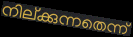
നില്ക്കുന്നതെന്ന്